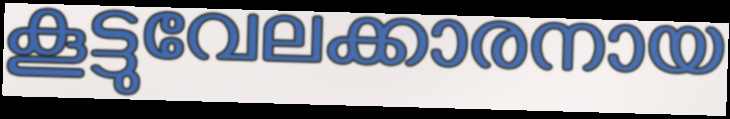
കൂട്ടുവേലക്കാരനായ